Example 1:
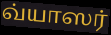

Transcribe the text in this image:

வ்யாஸர்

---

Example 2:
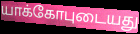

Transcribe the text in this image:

யாக்கோபுடையது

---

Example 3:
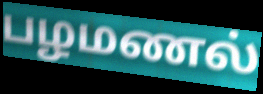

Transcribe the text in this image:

பழமணல்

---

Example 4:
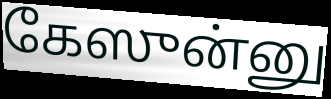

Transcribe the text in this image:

கேஸுன்னு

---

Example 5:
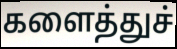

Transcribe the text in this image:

களைத்துச்